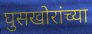
घुसखोरांच्या